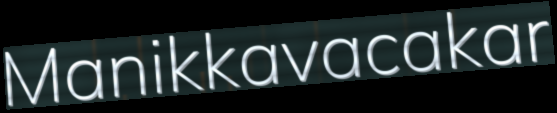
Manikkavacakar